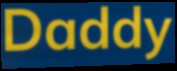
Daddy